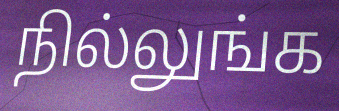
நில்லுங்க